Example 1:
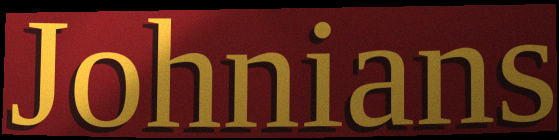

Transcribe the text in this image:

Johnians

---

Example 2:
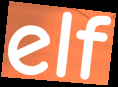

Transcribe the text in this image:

elf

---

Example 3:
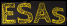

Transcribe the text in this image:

ESAs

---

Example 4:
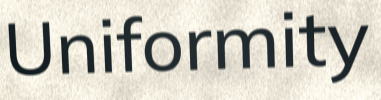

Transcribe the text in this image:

Uniformity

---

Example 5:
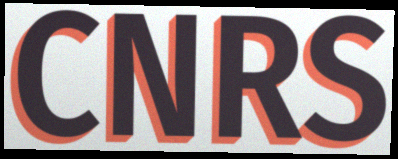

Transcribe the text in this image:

CNRS